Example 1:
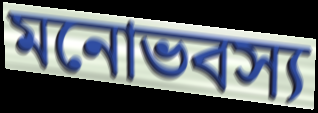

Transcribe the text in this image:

মনোভবস্য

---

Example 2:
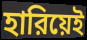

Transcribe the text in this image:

হারিয়েই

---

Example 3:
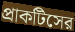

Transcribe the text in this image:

প্রাকটিসের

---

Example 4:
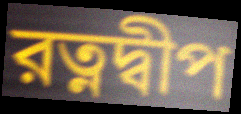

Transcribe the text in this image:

রত্নদ্বীপ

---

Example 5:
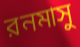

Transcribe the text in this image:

রনমাসু